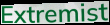
Extremist